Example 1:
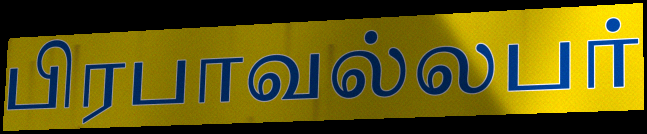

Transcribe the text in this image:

பிரபாவல்லபர்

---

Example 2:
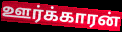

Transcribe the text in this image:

ஊர்க்காரன்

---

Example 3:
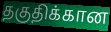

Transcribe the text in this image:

தகுதிக்கான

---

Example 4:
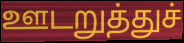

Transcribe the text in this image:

ஊடறுத்துச்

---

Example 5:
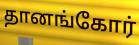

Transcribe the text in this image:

தானங்கோர்